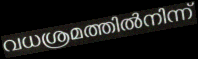
വധശ്രമത്തിൽനിന്ന്